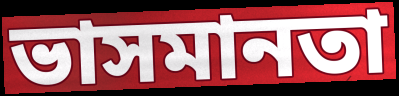
ভাসমানতা